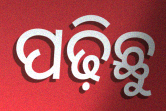
ପଢ଼ିଛୁ